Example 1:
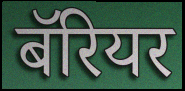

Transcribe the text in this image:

बॅरियर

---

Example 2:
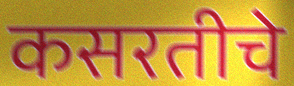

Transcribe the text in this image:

कसरतीचे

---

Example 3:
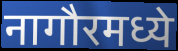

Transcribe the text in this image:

नागौरमध्ये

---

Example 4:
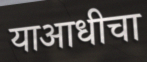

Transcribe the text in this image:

याआधीचा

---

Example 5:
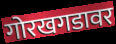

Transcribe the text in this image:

गोरखगडावर